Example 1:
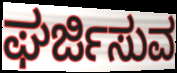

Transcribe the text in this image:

ಘರ್ಜಿಸುವ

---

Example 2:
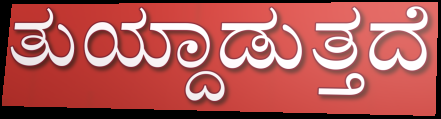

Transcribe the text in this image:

ತುಯ್ದಾಡುತ್ತದೆ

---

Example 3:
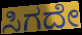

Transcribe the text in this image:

ಸಿಗದೇ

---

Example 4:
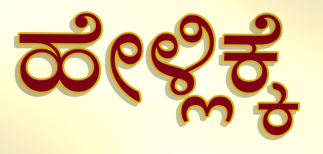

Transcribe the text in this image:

ಹೇಳ್ಲಿಕ್ಕೆ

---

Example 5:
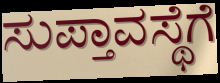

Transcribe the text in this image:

ಸುಪ್ತಾವಸ್ಥೆಗೆ